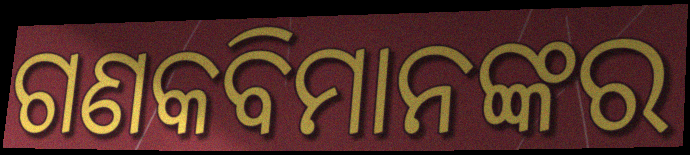
ଗଣକବିମାନଙ୍କର